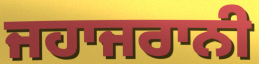
ਜਹਾਜਰਾਨੀ